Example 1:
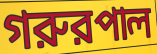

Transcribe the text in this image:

গরুরপাল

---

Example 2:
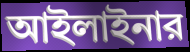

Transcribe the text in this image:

আইলাইনার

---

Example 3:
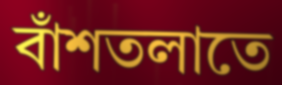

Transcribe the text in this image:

বাঁশতলাতে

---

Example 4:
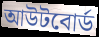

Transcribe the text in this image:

আউটবোর্ড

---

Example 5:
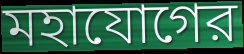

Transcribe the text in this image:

মহাযোগের